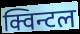
क्विन्टल